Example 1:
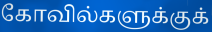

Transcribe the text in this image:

கோவில்களுக்குக்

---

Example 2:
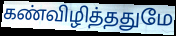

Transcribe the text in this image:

கண்விழித்ததுமே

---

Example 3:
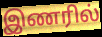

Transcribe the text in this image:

இணரில்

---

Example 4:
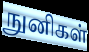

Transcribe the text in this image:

நுனிகள்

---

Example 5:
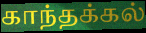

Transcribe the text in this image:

காந்தக்கல்